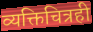
व्यक्तिचित्रही